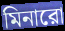
মিনারো